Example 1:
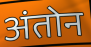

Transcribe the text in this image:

अंतोन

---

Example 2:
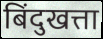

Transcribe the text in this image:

बिंदुखत्ता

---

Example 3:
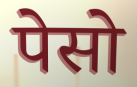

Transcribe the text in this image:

पेसो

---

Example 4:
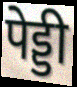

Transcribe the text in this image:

पेड्डी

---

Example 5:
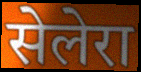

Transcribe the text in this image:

सेलेरा